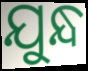
ଯୁନ୍ଧ